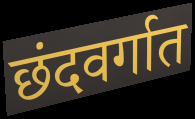
छंदवर्गात